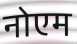
नोएम